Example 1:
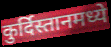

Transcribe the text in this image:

कुर्दिस्तानमध्ये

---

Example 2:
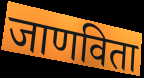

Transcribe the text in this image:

जाणविता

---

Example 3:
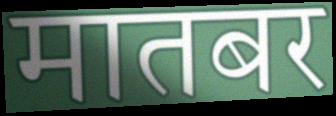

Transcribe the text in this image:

मातबर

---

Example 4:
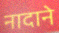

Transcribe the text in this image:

नादाने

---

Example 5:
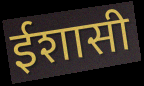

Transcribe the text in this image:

ईशासी